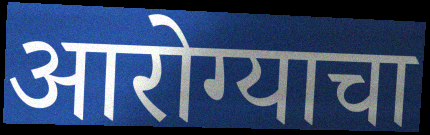
आरोग्याचा